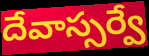
దేవాస్సర్వే